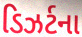
ડિઝર્ટના